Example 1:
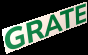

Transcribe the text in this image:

GRATE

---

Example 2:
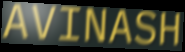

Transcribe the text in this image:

AVINASH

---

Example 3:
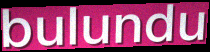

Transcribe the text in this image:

bulundu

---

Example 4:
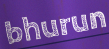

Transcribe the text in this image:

bhurun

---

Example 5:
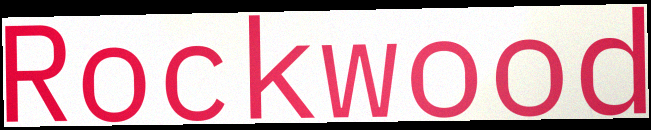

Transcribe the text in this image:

Rockwood